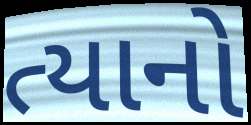
ત્યાનો